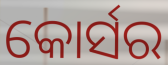
କୋର୍ସର